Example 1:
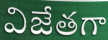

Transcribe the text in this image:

విజేతగా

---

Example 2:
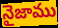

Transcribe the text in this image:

నైజాము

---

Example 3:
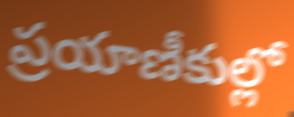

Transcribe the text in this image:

ప్రయాణీకుల్లో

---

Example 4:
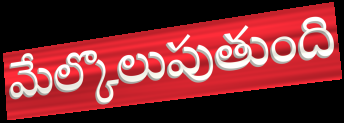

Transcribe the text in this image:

మేల్కొలుపుతుంది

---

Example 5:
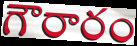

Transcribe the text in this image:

గౌరారం